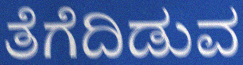
ತೆಗೆದಿಡುವ